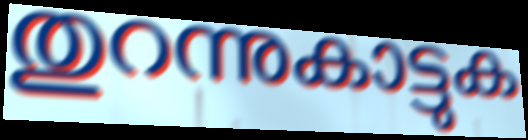
തുറന്നുകാട്ടുക